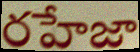
రహేజా